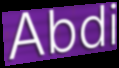
Abdi